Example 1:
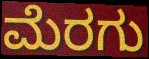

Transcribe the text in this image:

ಮೆರಗು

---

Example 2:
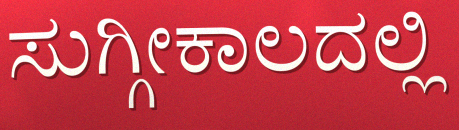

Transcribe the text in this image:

ಸುಗ್ಗೀಕಾಲದಲ್ಲಿ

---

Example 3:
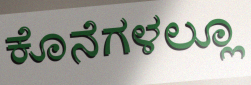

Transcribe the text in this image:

ಕೊನೆಗಳಲ್ಲೂ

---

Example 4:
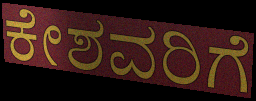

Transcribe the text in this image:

ಕೇಶವರಿಗೆ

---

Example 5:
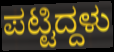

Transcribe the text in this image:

ಪಟ್ಟಿದ್ದಳು